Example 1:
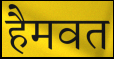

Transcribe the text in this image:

हैमवत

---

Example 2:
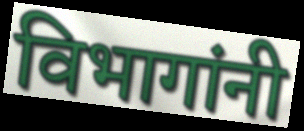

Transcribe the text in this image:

विभागांनी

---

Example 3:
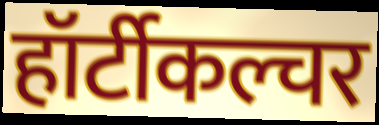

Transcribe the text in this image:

हॉर्टीकल्चर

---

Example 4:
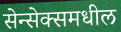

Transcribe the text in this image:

सेन्सेक्समधील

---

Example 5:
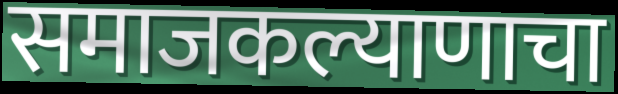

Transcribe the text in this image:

समाजकल्याणाचा